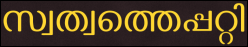
സ്വത്വത്തെപ്പറ്റി